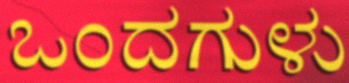
ಒಂದಗುಳು